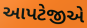
આપટેજીએ